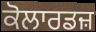
ਕੋਲਾਰਡਜ਼